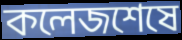
কলেজশেষে